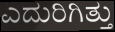
ಎದುರಿಗಿತ್ತು